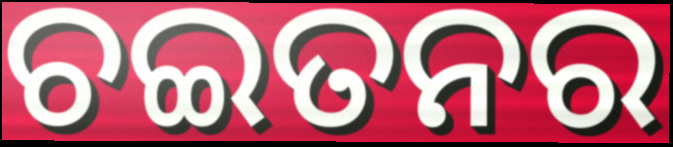
ଚଇତନର